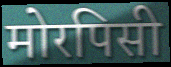
मोरपिसी